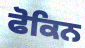
ਫੋਕਿਨ